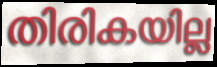
തിരികയില്ല